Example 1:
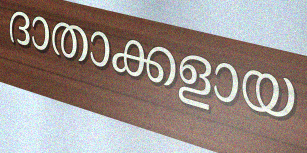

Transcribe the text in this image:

ദാതാക്കളായ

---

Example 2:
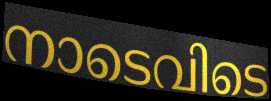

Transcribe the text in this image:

നാടെവിടെ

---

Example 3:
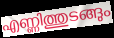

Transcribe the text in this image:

എണ്ണിത്തുടങ്ങും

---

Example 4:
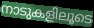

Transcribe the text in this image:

നാടുകളിലൂടെ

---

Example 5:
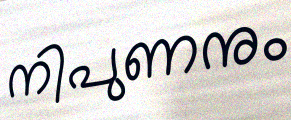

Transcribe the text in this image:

നിപുണനും